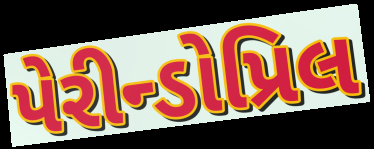
પેરીન્ડોપ્રિલ